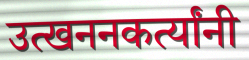
उत्खननकर्त्यांनी